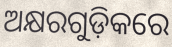
ଅକ୍ଷରଗୁଡ଼ିକରେ